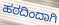
ಹಠದಿಂದಾಗಿ